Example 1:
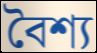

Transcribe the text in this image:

বৈশ্য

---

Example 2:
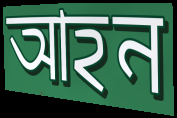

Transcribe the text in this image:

আহন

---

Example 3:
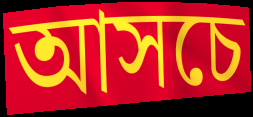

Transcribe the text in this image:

আসচে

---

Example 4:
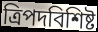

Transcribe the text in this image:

ত্রিপদবিশিষ্ট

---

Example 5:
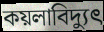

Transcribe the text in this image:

কয়লাবিদ্যুৎ